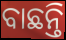
ବାଛନ୍ତି